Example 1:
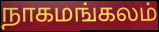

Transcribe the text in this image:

நாகமங்கலம்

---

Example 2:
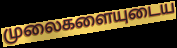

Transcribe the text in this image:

முலைகளையுடைய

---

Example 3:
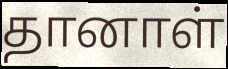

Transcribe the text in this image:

தானாள்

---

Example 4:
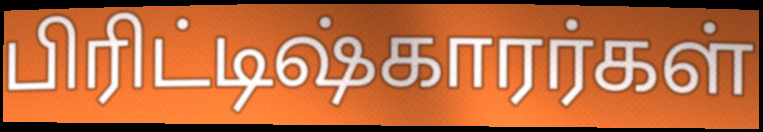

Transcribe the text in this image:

பிரிட்டிஷ்காரர்கள்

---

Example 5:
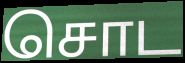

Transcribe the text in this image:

சொட